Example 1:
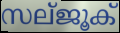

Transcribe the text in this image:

സല്ജൂക്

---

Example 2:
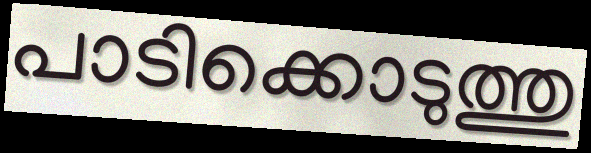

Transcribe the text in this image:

പാടിക്കൊടുത്തു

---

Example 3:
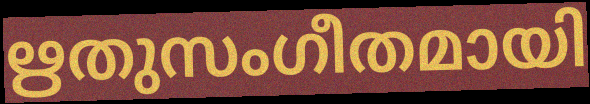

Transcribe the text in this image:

ഋതുസംഗീതമായി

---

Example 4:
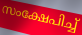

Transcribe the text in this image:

സംക്ഷേപിച്ച്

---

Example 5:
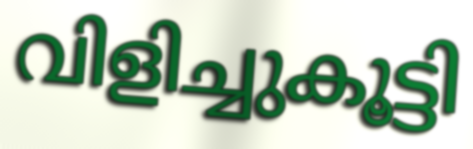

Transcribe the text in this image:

വിളിച്ചുകൂട്ടി